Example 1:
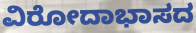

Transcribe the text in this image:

ವಿರೋದಾಭಾಸದ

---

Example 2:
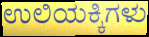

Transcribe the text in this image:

ಉಲಿಯಕ್ಕಿಗಳು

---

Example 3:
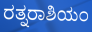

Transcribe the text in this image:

ರತ್ನರಾಶಿಯಂ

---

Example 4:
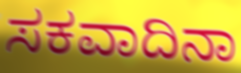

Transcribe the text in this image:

ಸಕವಾದಿನಾ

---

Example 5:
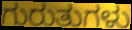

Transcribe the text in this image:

ಗುರುತುಗಳು